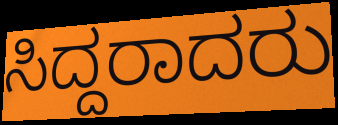
ಸಿದ್ದರಾದರು